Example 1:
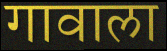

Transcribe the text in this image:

गावाला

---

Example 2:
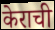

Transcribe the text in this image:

केराची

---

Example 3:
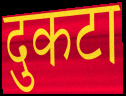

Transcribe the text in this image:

दुकटा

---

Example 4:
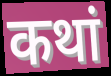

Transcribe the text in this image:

कथां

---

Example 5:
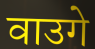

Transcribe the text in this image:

वाउगे